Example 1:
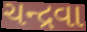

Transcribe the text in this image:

ચન્દ્રવા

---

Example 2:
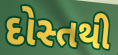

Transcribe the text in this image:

દોસ્તથી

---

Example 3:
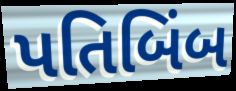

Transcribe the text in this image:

પતિબિંબ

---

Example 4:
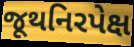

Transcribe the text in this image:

જૂથનિરપેક્ષ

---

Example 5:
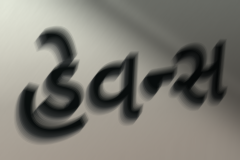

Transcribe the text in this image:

હેવન્સ